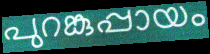
പുറങ്കുപ്പായം